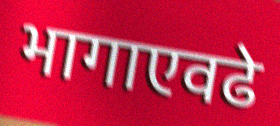
भागाएवढे